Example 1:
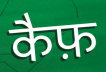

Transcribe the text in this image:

कैफ़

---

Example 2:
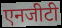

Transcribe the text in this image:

एनजीटी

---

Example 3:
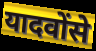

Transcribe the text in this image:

यादवोंसे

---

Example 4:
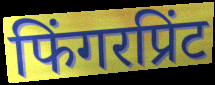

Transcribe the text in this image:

फिंगरप्रिंट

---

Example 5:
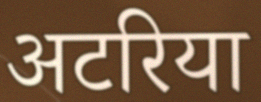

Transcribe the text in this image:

अटरिया